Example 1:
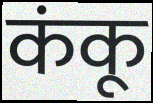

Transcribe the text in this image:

कंकू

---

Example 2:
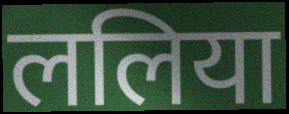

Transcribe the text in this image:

ललिया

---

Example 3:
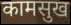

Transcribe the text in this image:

कामसुख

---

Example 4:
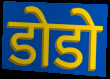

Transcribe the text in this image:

डोडो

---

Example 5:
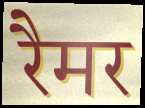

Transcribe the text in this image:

रैमर